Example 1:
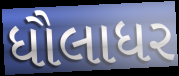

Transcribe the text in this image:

ધૌલાધર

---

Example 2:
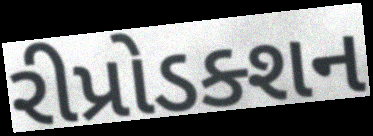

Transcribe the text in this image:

રીપ્રોડક્શન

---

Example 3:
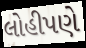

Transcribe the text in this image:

લોહીપણે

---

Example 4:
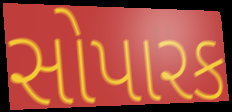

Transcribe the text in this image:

સોપારક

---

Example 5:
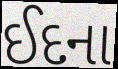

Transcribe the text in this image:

ઈદના